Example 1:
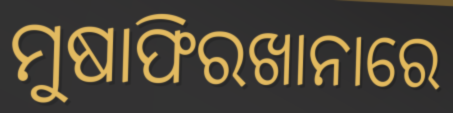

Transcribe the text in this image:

ମୁଷାଫିରଖାନାରେ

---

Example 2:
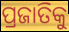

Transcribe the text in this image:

ପ୍ରଜାତିକୁ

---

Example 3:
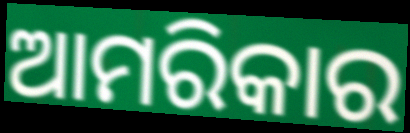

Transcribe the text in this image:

ଆମରିକାର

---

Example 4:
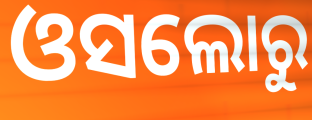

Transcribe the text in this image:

ଓସଲୋରୁ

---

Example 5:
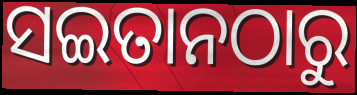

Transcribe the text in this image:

ସଇତାନଠାରୁ